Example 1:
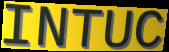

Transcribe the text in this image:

INTUC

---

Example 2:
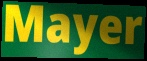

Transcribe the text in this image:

Mayer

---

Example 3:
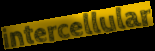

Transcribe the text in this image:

intercellular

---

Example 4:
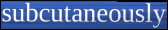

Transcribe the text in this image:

subcutaneously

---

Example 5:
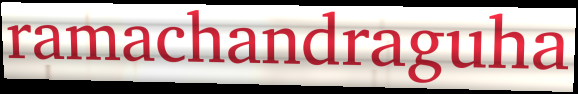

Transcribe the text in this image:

ramachandraguha